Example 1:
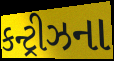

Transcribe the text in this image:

કન્ટ્રીઝના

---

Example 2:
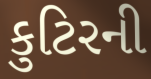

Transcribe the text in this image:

કુટિરની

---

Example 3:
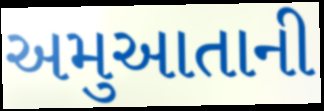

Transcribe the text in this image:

અમુઆતાની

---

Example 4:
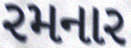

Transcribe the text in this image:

રમનાર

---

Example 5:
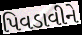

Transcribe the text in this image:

પિવડાવીને